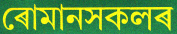
ৰোমানসকলৰ